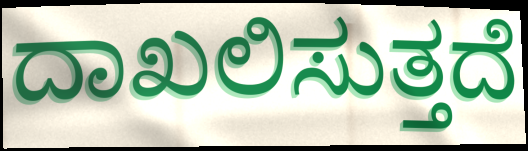
ದಾಖಲಿಸುತ್ತದೆ